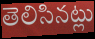
తెలిసినట్లు